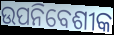
ଉପନିବେଶୀକ